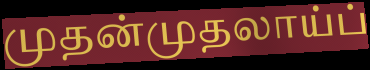
முதன்முதலாய்ப்